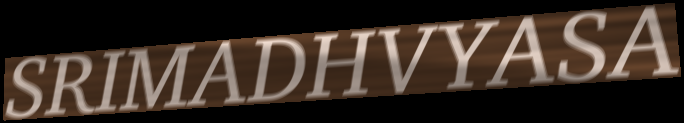
SRIMADHVYASA